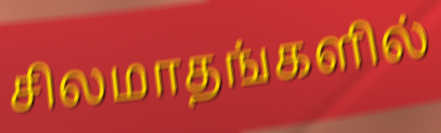
சிலமாதங்களில்